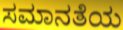
ಸಮಾನತೆಯ